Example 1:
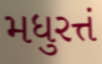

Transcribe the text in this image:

મધુરત્તં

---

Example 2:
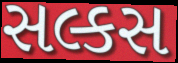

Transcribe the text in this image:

સલ્કસ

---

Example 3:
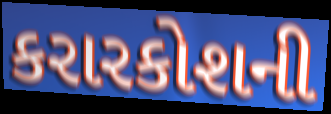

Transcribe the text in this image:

કરારકોશની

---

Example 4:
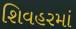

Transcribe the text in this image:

શિવહરમાં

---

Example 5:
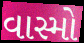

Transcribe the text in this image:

વાસ્મો